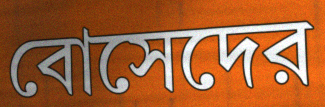
বোসেদের